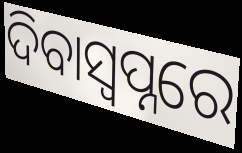
ଦିବାସ୍ବପ୍ନରେ